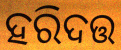
ହରିଦତ୍ତ